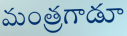
మంత్రగాడూ